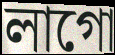
লাগো